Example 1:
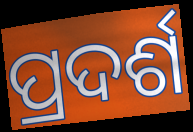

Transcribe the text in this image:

ପ୍ରଦର୍ଶ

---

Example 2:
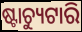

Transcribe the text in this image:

ଷ୍ଟାଚ୍ୟୁଟାରି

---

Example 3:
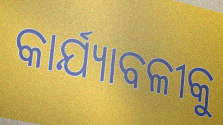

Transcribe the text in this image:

କାର୍ଯ୍ୟାବଳୀକୁ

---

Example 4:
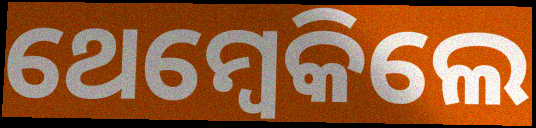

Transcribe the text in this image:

ଥେମ୍ବେକିଲେ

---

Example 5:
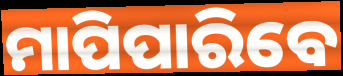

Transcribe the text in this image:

ମାପିପାରିବେ